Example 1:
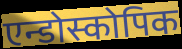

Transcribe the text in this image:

एन्डोस्कोपिक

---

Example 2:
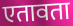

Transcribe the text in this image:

एतावता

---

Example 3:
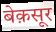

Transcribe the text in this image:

बेक़सूर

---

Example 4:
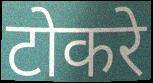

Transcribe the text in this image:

टोकरे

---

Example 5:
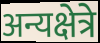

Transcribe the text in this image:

अन्यक्षेत्रे